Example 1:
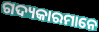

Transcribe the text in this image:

ଗଦ୍ୟକାରମାନେ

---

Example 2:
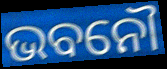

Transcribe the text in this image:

ଭବନୌ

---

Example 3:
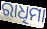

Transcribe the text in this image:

ରାଧିମା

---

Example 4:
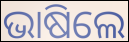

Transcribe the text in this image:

ଭାଷିଲେ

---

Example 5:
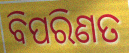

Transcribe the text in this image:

ବିପରିଣତ